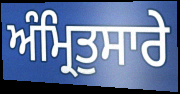
ਅੰਮ੍ਰਿਤੁਸਾਰੇ